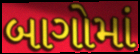
બાગોમાં